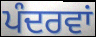
ਪੰਦਰਵਾਂ